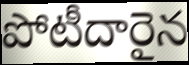
పోటీదారైన